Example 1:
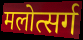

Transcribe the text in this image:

मलोत्सर्ग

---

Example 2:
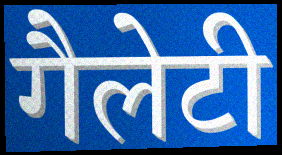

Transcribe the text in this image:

गैलेटी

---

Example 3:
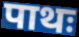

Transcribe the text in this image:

पाथः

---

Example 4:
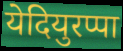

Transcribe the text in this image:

येदियुरप्पा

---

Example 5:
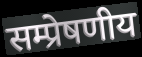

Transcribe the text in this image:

सम्प्रेषणीय